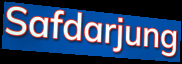
Safdarjung